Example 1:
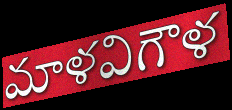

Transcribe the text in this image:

మాళవిగౌళ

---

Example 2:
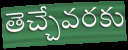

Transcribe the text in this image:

తెచ్చేవరకు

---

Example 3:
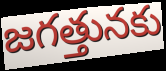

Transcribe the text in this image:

జగత్తునకు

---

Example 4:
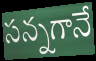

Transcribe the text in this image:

సన్నగానే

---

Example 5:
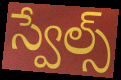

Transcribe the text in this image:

స్వేల్స్